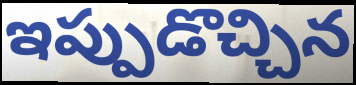
ఇప్పుడొచ్చిన